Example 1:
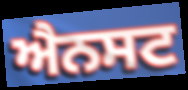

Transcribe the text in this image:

ਐਨਸਟ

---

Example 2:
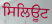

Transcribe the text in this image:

ਸਿਲਿਊਟ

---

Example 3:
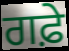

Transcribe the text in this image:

ਗਫ਼ੇ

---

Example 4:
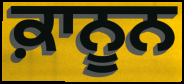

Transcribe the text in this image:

ਕ਼ਾਨੂਨ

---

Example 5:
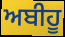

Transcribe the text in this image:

ਅਬੀਹੂ